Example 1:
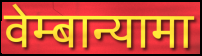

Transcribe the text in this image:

वेम्बान्यामा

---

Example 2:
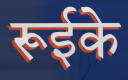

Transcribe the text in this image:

रूईके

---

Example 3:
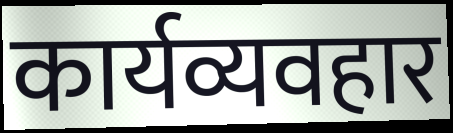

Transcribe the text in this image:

कार्यव्यवहार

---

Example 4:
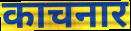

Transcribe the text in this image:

काचनार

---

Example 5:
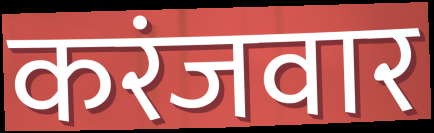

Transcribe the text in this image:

करंजवार